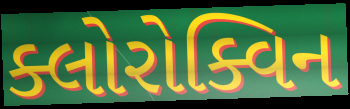
ક્લોરોક્વિન